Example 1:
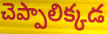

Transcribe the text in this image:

చెప్పాలిక్కడ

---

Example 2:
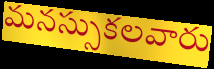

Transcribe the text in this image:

మనస్సుకలవారు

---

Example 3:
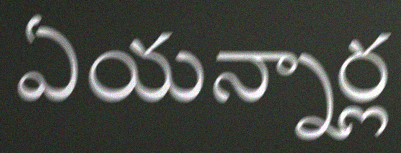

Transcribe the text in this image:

ఏయన్నార్ల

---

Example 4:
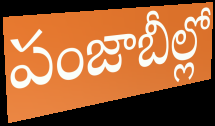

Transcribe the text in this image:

పంజాబీల్లో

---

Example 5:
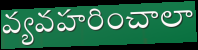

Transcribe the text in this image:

వ్యవహరించాలా